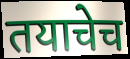
तयाचेच